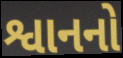
શ્વાનનો